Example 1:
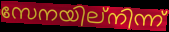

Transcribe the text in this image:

സേനയില്നിന്ന്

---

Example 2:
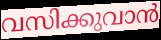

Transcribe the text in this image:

വസിക്കുവാൻ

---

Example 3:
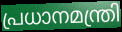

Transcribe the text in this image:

പ്രധാനമന്ത്രി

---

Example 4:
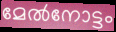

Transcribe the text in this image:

മേൽനോട്ടം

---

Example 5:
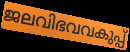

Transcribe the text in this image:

ജലവിഭവവകുപ്പ്